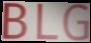
BLG